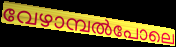
വേഴാമ്പൽപോലെ